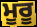
ਮੂਰੂ